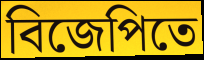
বিজেপিতে